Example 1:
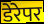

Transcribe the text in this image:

डेरेपर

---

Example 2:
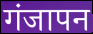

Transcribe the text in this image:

गंजापन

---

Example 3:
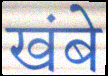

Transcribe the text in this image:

खंबे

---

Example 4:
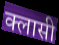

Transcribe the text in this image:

क्लासी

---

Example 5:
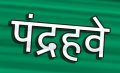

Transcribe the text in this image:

पंद्रहवे